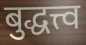
बुद्धत्त्व